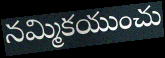
నమ్మికయుంచు